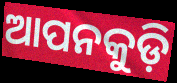
ଆପନକୁଡ଼ି